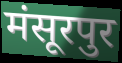
मंसूरपुर